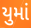
યુમાં